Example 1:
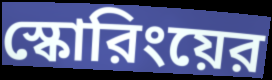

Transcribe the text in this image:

স্কোরিংয়ের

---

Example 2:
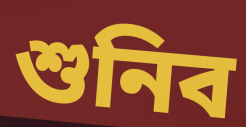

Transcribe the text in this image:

শুনিব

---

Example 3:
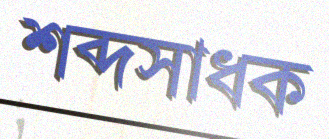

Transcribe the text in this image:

শব্দসাধক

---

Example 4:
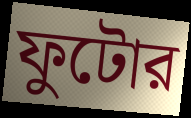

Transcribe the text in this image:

ফুটোর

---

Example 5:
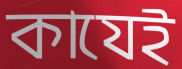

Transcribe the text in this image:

কাযেই